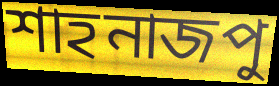
শাহনাজপু